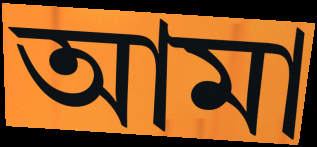
আমা